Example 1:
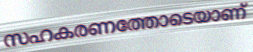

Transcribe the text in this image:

സഹകരണത്തോടെയാണ്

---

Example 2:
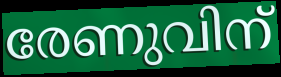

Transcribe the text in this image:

രേണുവിന്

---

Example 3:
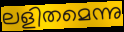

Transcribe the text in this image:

ലളിതമെന്നു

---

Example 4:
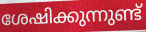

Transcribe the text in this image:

ശേഷിക്കുന്നുണ്ട്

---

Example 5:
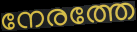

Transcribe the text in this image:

നേരത്തേ